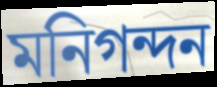
মনিগন্দন